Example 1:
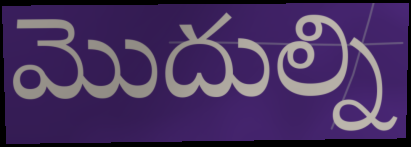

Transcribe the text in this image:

మొదుల్ని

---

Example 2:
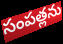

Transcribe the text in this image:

సంపత్లను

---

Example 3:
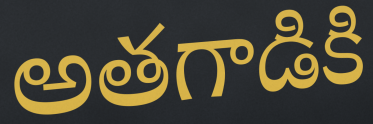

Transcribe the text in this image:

అతగాడికి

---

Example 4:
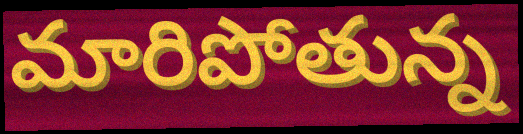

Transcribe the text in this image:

మారిపోతున్న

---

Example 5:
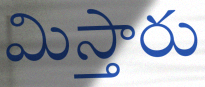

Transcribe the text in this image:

మిస్తారు